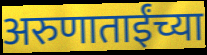
अरुणाताईंच्या